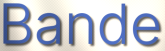
Bande